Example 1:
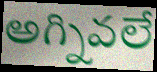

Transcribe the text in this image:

అగ్నివలే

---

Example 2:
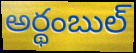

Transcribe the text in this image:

అర్థంబుల్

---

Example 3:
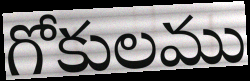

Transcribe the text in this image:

గోకులము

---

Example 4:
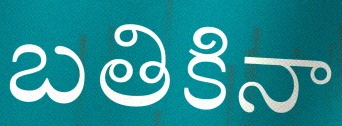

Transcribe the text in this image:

బతికినా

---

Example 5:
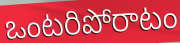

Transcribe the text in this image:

ఒంటరిపోరాటం